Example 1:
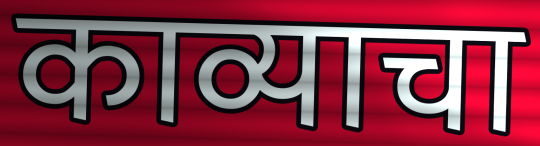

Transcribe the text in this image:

काव्याचा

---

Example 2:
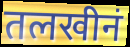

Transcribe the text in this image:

तलखीनं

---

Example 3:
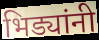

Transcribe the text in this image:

भिड्यांनी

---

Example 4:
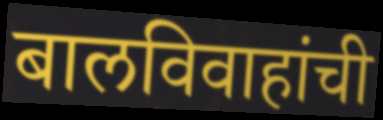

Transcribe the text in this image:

बालविवाहांची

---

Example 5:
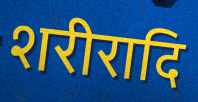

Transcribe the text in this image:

शरीरादि